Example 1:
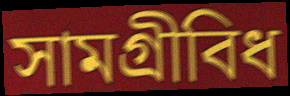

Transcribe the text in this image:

সামগ্ৰীবিধ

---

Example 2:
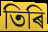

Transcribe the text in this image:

তিৰি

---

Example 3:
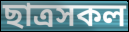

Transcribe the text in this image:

ছাত্ৰসকল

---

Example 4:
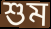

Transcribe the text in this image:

শুম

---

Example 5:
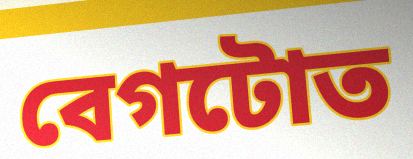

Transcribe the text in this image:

বেগটোত